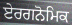
ਏਰਗਨੋਮਿਕ